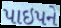
પાઇપને